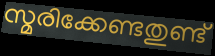
സ്മരിക്കേണ്ടതുണ്ട്